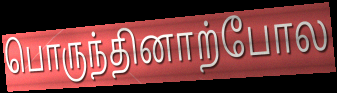
பொருந்தினாற்போல